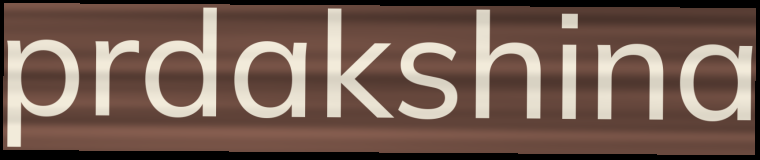
prdakshina